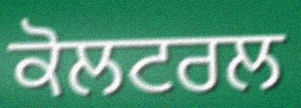
ਕੋਲਟਰਲ